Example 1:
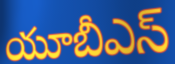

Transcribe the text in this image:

యూబీఎస్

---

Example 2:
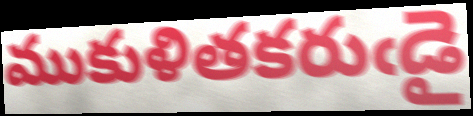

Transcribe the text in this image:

ముకుళితకరుఁడై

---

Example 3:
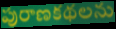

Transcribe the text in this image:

పురాణకథలను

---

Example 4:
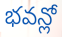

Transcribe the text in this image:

భవన్లో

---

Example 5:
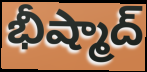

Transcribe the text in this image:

భీష్మాద్